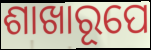
ଶାଖାରୂପେ